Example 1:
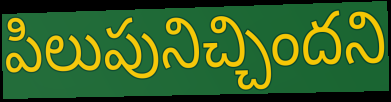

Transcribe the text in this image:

పిలుపునిచ్చిందని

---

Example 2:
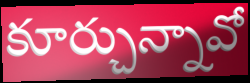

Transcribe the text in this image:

కూర్చున్నావో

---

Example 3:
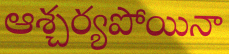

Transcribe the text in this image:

ఆశ్చర్యపోయినా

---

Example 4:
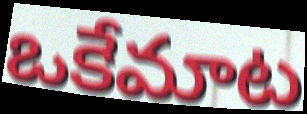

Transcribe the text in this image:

ఒకేమాట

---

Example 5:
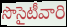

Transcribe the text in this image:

సొసైటీవారి